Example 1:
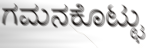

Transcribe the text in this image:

ಗಮನಕೊಟ್ಟು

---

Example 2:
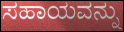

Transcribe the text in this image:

ಸಹಾಯವನ್ನು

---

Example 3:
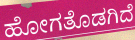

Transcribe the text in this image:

ಹೋಗತೊಡಗಿದೆ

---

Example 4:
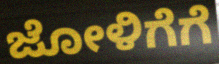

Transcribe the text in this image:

ಜೋಳಿಗೆಗೆ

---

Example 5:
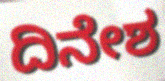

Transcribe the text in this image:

ದಿನೇಶ